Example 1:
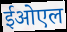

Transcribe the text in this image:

ईओएल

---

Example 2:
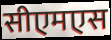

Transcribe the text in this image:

सीएमएस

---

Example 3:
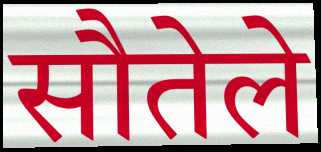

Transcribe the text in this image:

सौतेले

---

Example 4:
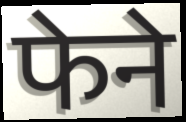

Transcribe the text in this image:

फेने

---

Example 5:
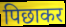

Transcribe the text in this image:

पिछाकर